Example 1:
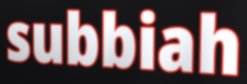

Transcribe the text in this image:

subbiah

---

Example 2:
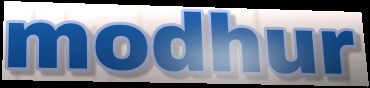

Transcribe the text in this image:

modhur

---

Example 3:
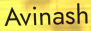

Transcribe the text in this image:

Avinash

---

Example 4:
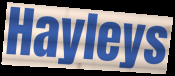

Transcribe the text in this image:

Hayleys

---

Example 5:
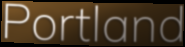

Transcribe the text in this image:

Portland